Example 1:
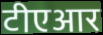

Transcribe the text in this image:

टीएआर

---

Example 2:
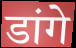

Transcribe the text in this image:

डांगे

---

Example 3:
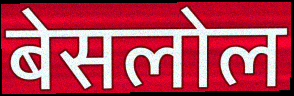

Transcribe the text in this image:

बेसलोल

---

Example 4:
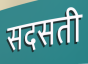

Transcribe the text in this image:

सदसती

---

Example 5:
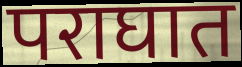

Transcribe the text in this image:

पराघात